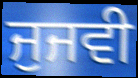
ਜੁਜਵੀ